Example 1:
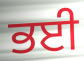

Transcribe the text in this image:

ਭਈ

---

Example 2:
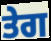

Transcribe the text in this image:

ਤੇਗ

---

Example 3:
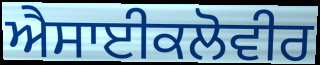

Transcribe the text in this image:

ਐਸਾਈਕਲੋਵੀਰ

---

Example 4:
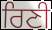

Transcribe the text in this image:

ਰਿਣੀ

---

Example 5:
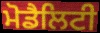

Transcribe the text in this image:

ਮੋਡੈਲਿਟੀ